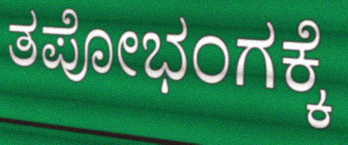
ತಪೋಭಂಗಕ್ಕೆ